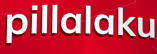
pillalaku